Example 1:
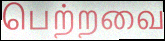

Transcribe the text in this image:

பெற்றவை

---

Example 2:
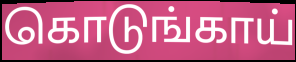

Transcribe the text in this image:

கொடுங்காய்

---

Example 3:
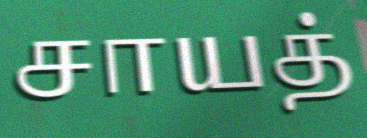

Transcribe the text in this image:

சாயத்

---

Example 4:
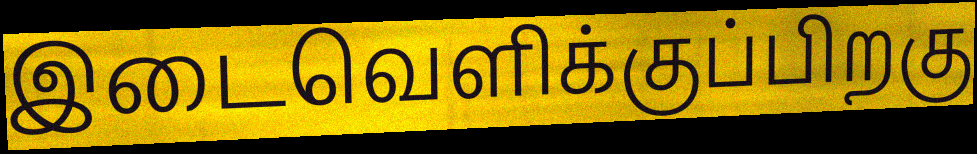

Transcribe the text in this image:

இடைவெளிக்குப்பிறகு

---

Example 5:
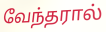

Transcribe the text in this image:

வேந்தரால்